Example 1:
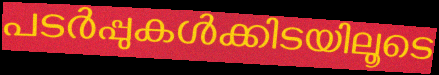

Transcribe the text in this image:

പടർപ്പുകൾക്കിടയിലൂടെ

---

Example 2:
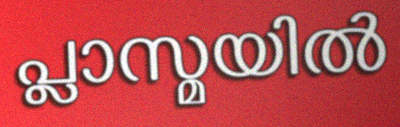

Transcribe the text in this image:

പ്ലാസ്മയിൽ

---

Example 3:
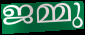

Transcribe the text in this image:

ജമ്മു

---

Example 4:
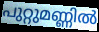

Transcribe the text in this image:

പുറ്റുമണ്ണിൽ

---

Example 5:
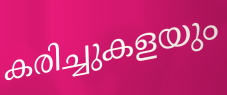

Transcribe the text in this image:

കരിച്ചുകളയും